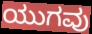
ಯುಗವು